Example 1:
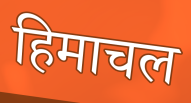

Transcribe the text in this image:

हिमाचल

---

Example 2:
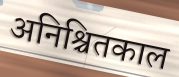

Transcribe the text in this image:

अनिश्चितकाल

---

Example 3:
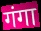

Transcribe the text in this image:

गंगा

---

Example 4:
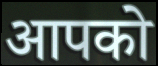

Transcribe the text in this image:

आपको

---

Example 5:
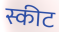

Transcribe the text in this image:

स्कीट